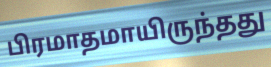
பிரமாதமாயிருந்தது